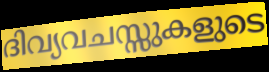
ദിവ്യവചസ്സുകളുടെ